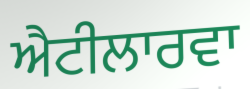
ਐਟੀਲਾਰਵਾ